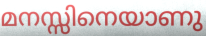
മനസ്സിനെയാണു